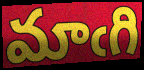
మాఁగి